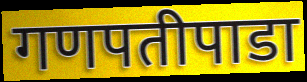
गणपतीपाडा